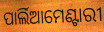
ପାର୍ଲିଆମେଣ୍ଟାରୀ